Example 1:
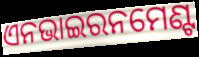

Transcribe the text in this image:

ଏନଭାଇରନମେଣ୍ଟ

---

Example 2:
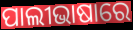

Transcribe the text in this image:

ପାଲୀଭାଷାରେ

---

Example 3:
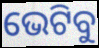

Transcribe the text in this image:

ଭେଟିବୁ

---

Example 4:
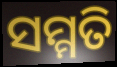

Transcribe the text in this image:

ସମ୍ମତି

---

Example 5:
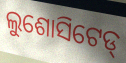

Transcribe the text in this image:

ଲୁଶୋସିଟେଡ୍